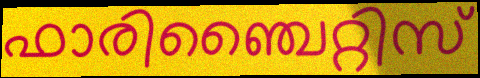
ഫാരിഞ്ചൈറ്റിസ്